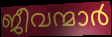
ജീവന്മാർ